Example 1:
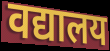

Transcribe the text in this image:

वद्यालय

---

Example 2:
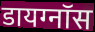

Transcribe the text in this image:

डायग्नॉस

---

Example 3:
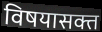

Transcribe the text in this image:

विषयासक्त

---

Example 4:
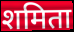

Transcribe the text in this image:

शमिता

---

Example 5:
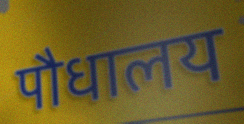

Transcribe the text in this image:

पौधालय